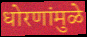
धोरणांमुळे